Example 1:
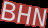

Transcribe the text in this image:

BHN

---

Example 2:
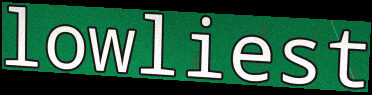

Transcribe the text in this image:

lowliest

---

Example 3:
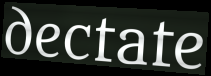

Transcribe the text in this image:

dectate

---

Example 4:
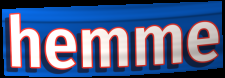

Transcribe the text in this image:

hemme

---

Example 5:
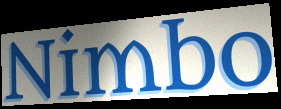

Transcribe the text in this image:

Nimbo